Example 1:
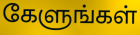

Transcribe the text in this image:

கேளுங்கள்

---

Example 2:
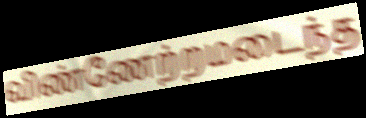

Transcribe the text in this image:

விண்ணேற்றமடைந்த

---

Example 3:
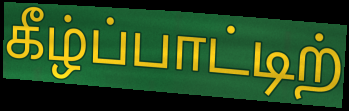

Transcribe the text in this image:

கீழ்ப்பாட்டிற்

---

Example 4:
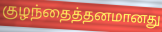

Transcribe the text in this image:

குழந்தைத்தனமானது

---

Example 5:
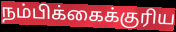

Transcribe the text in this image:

நம்பிக்கைக்குரிய